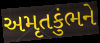
અમૃતકુંભને